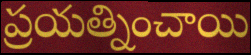
ప్రయత్నించాయి